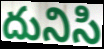
దునిసి